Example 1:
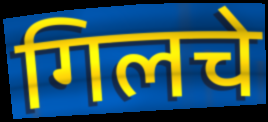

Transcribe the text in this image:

गिलचे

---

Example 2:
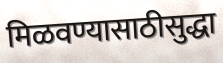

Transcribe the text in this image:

मिळवण्यासाठीसुद्धा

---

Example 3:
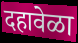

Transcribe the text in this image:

दहावेळा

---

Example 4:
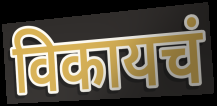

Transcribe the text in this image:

विकायचं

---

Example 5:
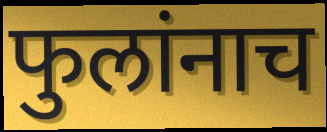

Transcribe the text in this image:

फुलांनाच